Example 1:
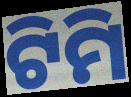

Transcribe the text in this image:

ଟିମି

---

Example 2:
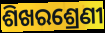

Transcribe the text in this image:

ଶିଖରଶ୍ରେଣୀ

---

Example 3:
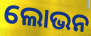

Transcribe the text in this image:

ଲୋଭନ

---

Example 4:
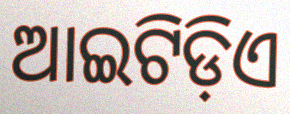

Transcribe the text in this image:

ଆଇଟିଡ଼ିଏ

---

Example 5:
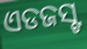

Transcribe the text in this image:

ଏଡଜସ୍ଟ